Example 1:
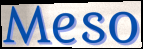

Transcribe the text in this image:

Meso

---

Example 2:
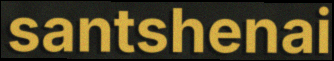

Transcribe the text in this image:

santshenai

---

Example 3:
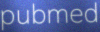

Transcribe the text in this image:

pubmed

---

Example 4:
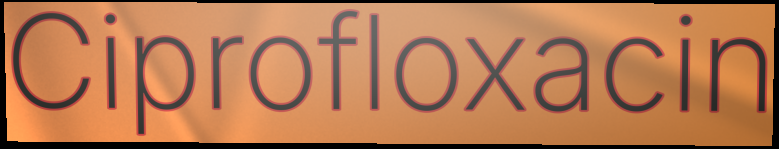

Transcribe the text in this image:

Ciprofloxacin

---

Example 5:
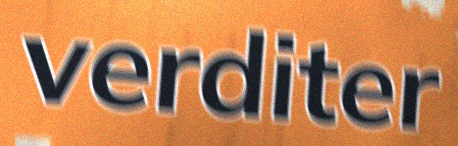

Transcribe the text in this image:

verditer